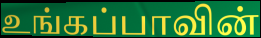
உங்கப்பாவின்